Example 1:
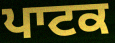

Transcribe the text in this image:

ਪਾਟਕ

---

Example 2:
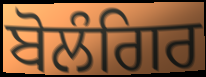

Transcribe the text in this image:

ਬੋਲੰਗਿਰ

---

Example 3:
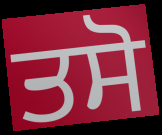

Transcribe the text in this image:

ਤਸੋ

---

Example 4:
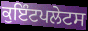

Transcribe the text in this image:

ਕੁਇੰਟਪਲੇਟਸ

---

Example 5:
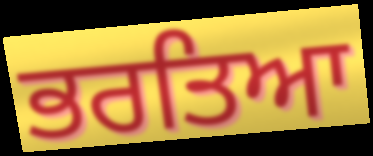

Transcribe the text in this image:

ਭਰਤਿਆ